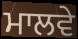
ਮਾਲਵੇ